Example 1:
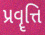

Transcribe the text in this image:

પ્રવૄત્તિ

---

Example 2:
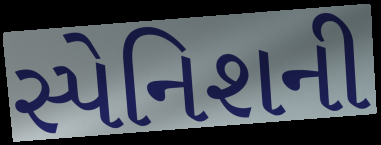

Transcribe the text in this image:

સ્પેનિશની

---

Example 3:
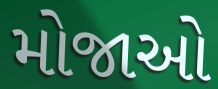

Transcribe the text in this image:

મોજાઓ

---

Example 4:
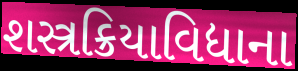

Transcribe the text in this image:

શસ્ત્રક્રિયાવિદ્યાના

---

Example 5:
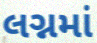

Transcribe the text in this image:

લગ્નમાં